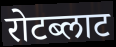
रोटब्लाट